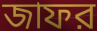
জাফর